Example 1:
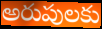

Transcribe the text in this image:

అరుపులకు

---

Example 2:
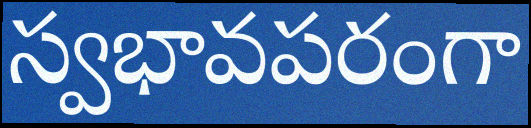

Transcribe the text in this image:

స్వభావపరంగా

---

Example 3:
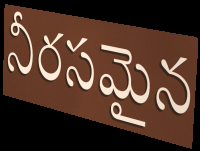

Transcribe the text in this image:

నీరసమైన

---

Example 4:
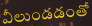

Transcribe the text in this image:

వీలుండడంతో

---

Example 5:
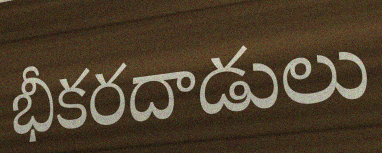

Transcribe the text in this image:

భీకరదాడులు